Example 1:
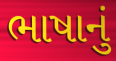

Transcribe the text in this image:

ભાષાનું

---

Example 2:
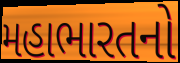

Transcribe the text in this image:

મહાભારતનો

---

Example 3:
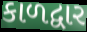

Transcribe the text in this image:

કાળદ્વાર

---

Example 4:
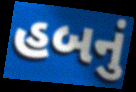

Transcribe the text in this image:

હબનું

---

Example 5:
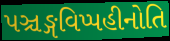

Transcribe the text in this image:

પઞ્ચઙ્ગવિપ્પહીનોતિ